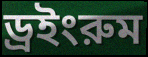
ড্রইংরুম